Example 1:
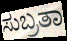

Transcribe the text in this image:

ಸುಬ್ರತಾ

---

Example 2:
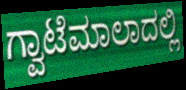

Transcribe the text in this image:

ಗ್ವಾಟೆಮಾಲಾದಲ್ಲಿ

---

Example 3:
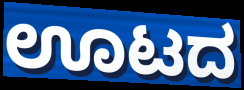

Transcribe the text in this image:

ಊಟದ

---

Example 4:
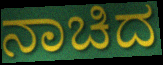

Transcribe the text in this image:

ನಾಚಿದ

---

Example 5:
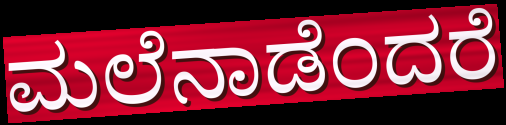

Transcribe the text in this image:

ಮಲೆನಾಡೆಂದರೆ